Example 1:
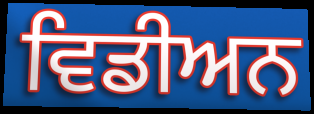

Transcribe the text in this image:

ਵਿਡੀਅਨ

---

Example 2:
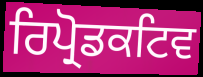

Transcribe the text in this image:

ਰਿਪ੍ਰੋਡਕਟਿਵ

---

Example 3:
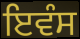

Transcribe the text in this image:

ਇਵੰਸ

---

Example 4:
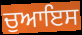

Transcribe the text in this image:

ਚੁਆਇਸ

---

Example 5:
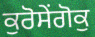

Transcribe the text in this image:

ਕੁਰੋਸੇਂਗੋਕੁ